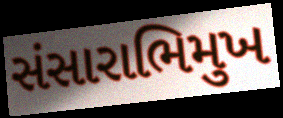
સંસારાભિમુખ